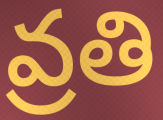
వ్రతి